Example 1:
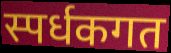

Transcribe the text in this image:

स्पर्धकगत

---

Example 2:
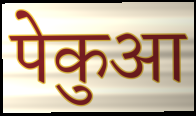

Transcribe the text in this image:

पेकुआ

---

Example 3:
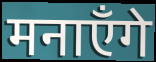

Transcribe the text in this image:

मनाएँगे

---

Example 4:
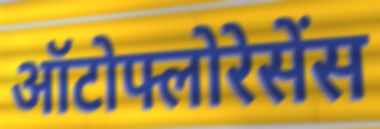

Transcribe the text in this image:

ऑटोफ्लोरेसेंस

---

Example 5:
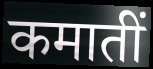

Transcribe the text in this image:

कमातीं